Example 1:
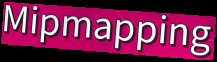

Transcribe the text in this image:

Mipmapping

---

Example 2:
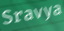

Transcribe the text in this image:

Sravya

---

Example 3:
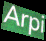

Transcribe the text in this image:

Arpi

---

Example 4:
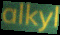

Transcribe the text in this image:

alkyl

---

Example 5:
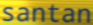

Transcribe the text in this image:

santan